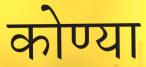
कोण्या